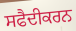
ਸਫੈਦੀਕਰਨ